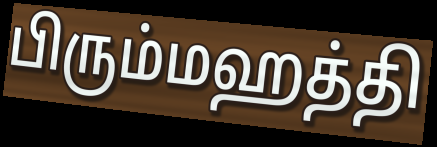
பிரும்மஹத்தி